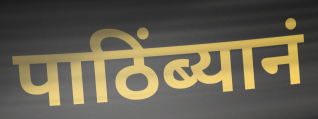
पाठिंब्यानं